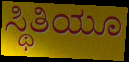
ಸ್ಥಿತಿಯೂ